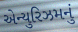
એન્યુરિઝમનું